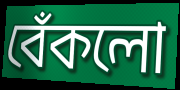
বেঁকলো